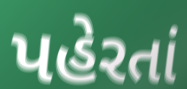
પહેરતાં